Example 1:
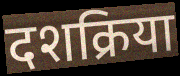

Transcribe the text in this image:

दशक्रिया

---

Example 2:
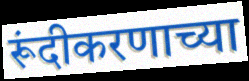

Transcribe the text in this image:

रूंदीकरणाच्या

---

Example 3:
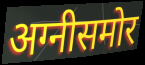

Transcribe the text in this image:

अग्नीसमोर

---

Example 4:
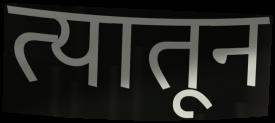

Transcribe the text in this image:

त्‍यातून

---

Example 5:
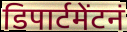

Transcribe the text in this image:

डिपार्टमेंटनं